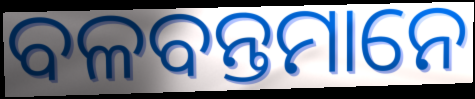
ବଳବନ୍ତମାନେ